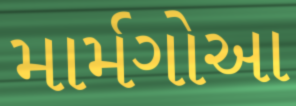
માર્મગોઆ